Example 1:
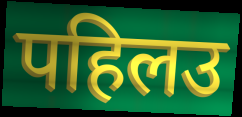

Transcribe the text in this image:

पहिलउ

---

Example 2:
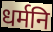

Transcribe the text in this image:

धर्मनि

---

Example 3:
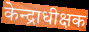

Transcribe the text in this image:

केन्द्राधीक्षक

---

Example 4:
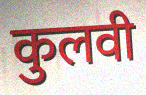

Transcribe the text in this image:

कुलवी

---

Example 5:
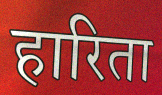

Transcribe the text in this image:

हारिता